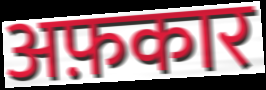
अफ़कार